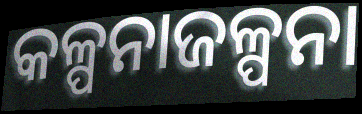
କଳ୍ପନାଜଳ୍ପନା